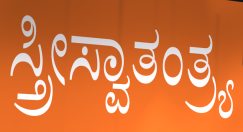
ಸ್ತ್ರೀಸ್ವಾತಂತ್ರ್ಯ